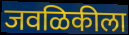
जवळिकीला